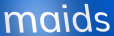
maids